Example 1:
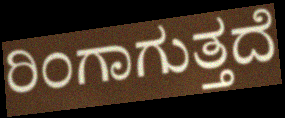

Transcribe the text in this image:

ರಿಂಗಾಗುತ್ತದೆ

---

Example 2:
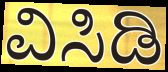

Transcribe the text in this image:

ವಿಸಿಡಿ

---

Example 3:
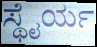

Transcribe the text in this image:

ಸ್ಥೈರ್ಯ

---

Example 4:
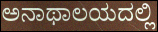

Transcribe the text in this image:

ಅನಾಥಾಲಯದಲ್ಲಿ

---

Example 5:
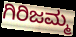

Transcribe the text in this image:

ಗಿರಿಜಮ್ಮ